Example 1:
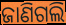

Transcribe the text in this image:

ଜାଣିଗଲି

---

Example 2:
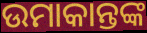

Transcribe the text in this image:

ଉମାକାନ୍ତଙ୍କ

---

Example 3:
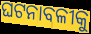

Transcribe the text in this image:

ଘଟନାବଳୀକୁ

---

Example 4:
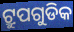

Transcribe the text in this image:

ଟ୍ରୁପଗୁଡିକ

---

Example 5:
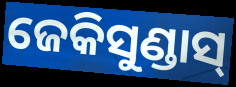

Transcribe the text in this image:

ଜେକିସୁଣ୍ଡାସ୍